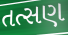
તત્સણ